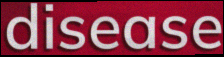
disease